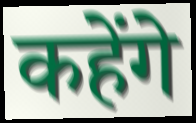
कहेंगे